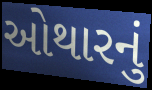
ઓથારનું